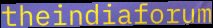
theindiaforum